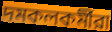
দমকলকর্মীরা